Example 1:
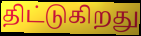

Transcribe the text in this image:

திட்டுகிறது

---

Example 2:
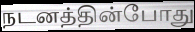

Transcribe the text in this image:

நடனத்தின்போது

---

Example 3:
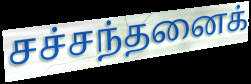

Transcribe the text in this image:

சச்சந்தனைக்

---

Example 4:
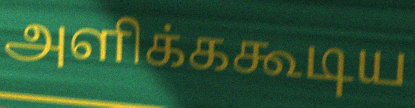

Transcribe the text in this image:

அளிக்ககூடிய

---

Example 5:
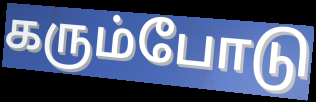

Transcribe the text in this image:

கரும்போடு